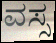
ವಸ್ಸ